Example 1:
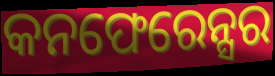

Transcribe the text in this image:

କନଫେରେନ୍ସର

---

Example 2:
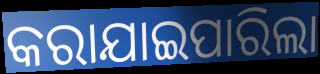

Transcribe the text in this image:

କରାଯାଇପାରିଲା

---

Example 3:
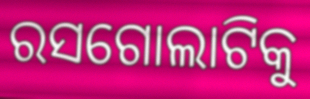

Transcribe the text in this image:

ରସଗୋଲାଟିକୁ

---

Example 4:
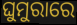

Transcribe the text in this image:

ଘୁମୁରାରେ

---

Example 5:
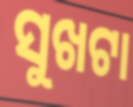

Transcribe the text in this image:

ସୁଖଟା